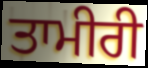
ਤਾਮੀਰੀ